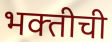
भक्‍तीची